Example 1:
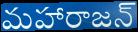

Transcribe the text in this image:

మహారాజన్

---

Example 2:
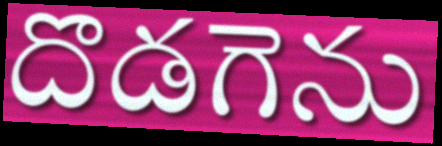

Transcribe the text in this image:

దొడగెను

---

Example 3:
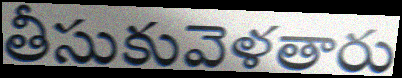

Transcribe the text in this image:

తీసుకువెళతారు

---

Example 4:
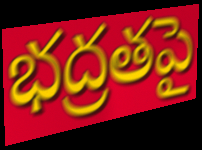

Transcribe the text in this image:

భద్రతపై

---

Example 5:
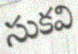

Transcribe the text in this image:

సుకవి